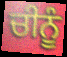
ਚੀਨੂੰ